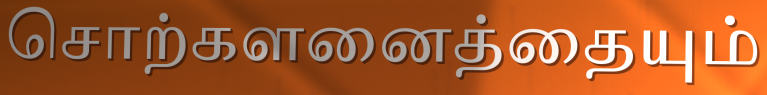
சொற்களனைத்தையும்